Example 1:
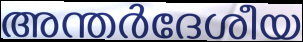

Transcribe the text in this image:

അന്തർദേശീയ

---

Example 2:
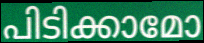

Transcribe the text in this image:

പിടിക്കാമോ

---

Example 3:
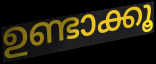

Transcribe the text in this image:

ഉണ്ടാക്കൂ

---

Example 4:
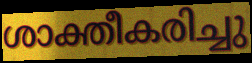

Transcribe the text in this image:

ശാക്തീകരിച്ചു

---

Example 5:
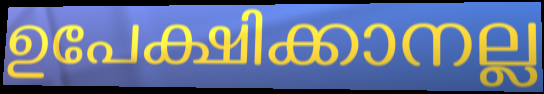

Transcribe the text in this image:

ഉപേക്ഷിക്കാനല്ല